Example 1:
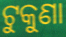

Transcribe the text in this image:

ଟୁକୁଣା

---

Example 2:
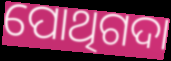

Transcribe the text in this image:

ପୋଥିଗଦା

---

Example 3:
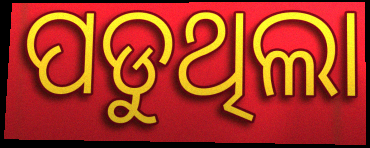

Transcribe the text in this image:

ପଡୁଥିଲା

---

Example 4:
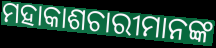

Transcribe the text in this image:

ମହାକାଶଚାରୀମାନଙ୍କ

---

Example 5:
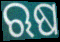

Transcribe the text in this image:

ଋଷ